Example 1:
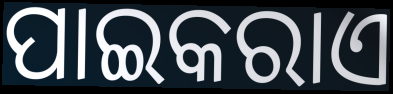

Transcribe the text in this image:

ପାଇକରାଏ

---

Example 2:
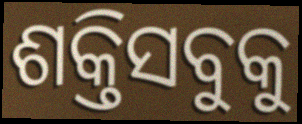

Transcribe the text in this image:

ଶକ୍ତିସବୁକୁ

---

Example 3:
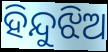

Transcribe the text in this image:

ହିନ୍ଦୁଝିଅ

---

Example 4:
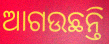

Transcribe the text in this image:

ଆଗଉଛନ୍ତି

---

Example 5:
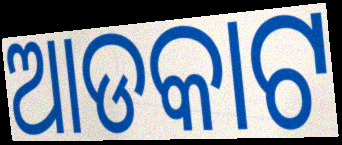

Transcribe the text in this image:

ଆଡକାଟ